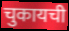
चुकायची